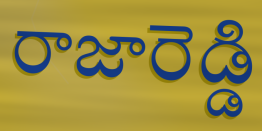
రాజారెడ్డి